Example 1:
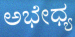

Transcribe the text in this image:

ಅಭೇಧ್ಯ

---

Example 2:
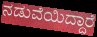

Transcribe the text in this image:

ನಡುವೆಯಿದ್ದಾರೆ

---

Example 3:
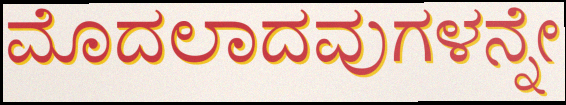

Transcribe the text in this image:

ಮೊದಲಾದವುಗಳನ್ನೇ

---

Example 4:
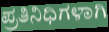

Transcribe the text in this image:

ಪ್ರತಿನಿಧಿಗಳಾಗಿ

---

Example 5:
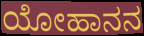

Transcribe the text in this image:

ಯೋಹಾನನ